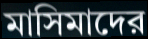
মাসিমাদের